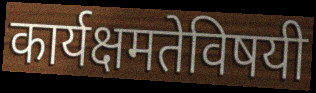
कार्यक्षमतेविषयी